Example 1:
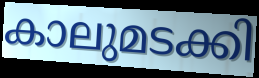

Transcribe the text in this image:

കാലുമടക്കി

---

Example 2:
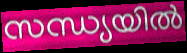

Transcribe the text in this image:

സന്ധ്യയിൽ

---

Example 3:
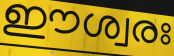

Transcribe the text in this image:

ഈശ്വരഃ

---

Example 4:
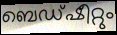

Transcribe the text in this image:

ബെഡ്ഷീറ്റും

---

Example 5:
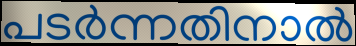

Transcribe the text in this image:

പടർന്നതിനാൽ